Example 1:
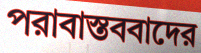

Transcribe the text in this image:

পরাবাস্তববাদের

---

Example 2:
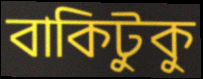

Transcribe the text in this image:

বাকিটুকু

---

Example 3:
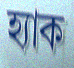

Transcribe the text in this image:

হ্যাক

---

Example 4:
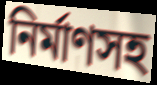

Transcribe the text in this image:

নির্মাণসহ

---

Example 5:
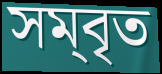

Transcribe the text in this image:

সম্‌বৃত